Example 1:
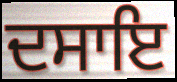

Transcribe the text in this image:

ਦਸਾਇ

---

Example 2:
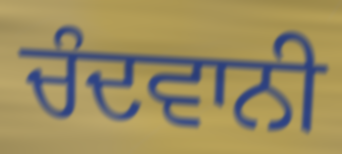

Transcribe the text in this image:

ਚੰਦਵਾਨੀ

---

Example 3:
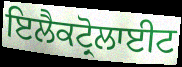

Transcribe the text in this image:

ਇਲੈਕਟ੍ਰੋਲਾਈਟ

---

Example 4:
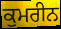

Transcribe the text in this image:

ਕੁਮਰੀਨ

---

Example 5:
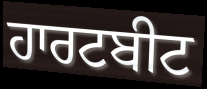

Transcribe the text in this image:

ਹਾਰਟਬੀਟ